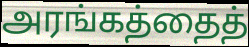
அரங்கத்தைத்